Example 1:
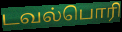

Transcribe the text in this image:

டவல்பொரி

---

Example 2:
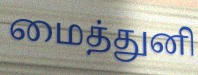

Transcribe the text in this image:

மைத்துனி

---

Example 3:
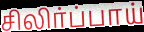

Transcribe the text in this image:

சிலிர்ப்பாய்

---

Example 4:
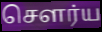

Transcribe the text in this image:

சௌர்ய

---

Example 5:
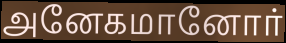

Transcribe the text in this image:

அனேகமானோர்